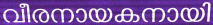
വീരനായകനായി